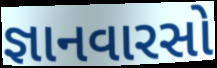
જ્ઞાનવારસો